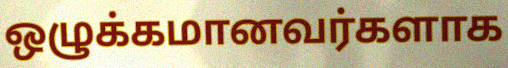
ஒழுக்கமானவர்களாக